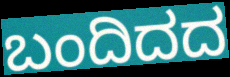
ಬಂದಿದದ